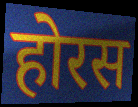
होरस